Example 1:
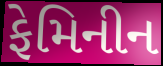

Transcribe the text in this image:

ફેમિનીન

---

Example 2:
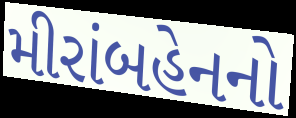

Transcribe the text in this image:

મીરાંબહેનનો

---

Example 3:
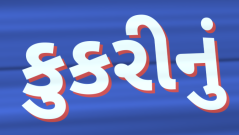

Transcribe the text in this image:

કુકરીનું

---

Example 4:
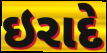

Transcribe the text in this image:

ઇરાદે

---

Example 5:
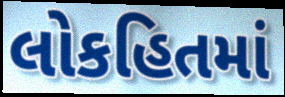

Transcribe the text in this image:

લોકહિતમાં